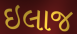
ઇલાજ